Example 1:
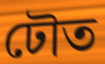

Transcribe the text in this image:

ঢৌত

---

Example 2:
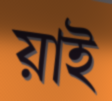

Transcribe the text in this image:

য়াই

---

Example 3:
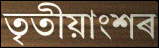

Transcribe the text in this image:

তৃতীয়াংশৰ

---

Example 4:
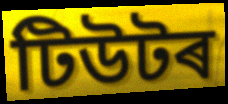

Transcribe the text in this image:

টিউটৰ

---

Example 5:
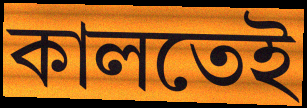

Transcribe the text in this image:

কালতেই